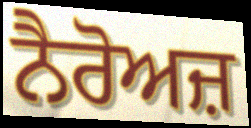
ਨੈਰੋਅਜ਼